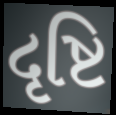
દૃષ્ટિ